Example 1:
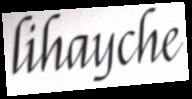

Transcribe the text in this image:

lihayche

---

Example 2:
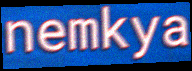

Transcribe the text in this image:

nemkya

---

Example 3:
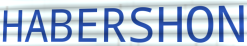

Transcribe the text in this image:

HABERSHON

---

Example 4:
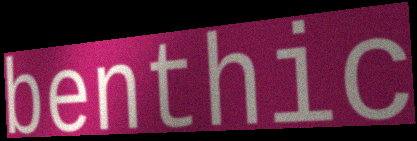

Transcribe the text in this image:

benthic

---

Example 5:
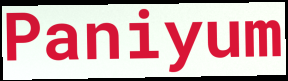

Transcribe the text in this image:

Paniyum